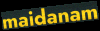
maidanam